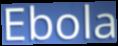
Ebola